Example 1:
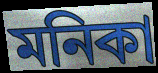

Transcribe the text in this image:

মনিকা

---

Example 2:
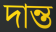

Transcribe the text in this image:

দান্ত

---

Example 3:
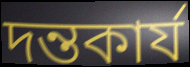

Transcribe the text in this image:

দন্তকার্য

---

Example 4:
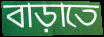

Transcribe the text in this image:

বাড়াতে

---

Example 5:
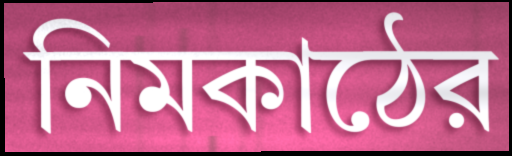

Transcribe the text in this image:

নিমকাঠের